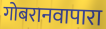
गोबरानवापारा